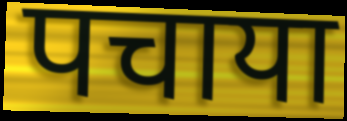
पचाया